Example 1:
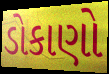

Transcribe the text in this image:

ડોકાણો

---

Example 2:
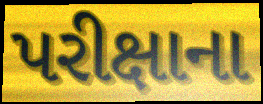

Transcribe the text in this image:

પરીક્ષાના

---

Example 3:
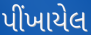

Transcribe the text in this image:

પીંખાયેલ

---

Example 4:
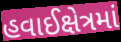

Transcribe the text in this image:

હવાઈક્ષેત્રમાં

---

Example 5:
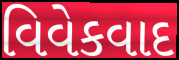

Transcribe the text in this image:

વિવેકવાદ